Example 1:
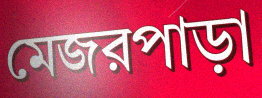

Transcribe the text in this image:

মেজরপাড়া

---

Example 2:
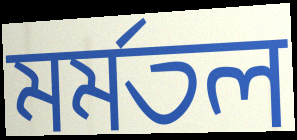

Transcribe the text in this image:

মর্মতল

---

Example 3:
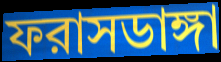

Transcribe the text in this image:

ফরাসডাঙ্গা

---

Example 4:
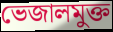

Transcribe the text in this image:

ভেজালমুক্ত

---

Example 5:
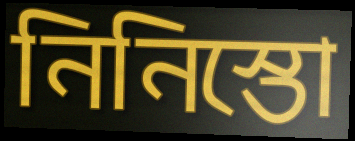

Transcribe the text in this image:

নিনিস্তো